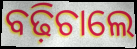
ବଢ଼ିଚାଲେ